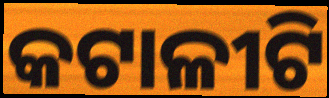
କଟାଳୀଟି